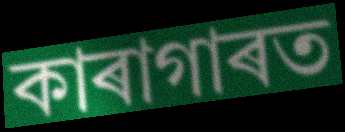
কাৰাগাৰত